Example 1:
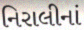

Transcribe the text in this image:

નિરાલીનાં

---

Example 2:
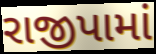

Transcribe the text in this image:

રાજીપામાં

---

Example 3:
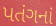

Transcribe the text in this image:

પતંગનાં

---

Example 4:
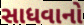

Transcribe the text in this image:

સાધવાનો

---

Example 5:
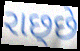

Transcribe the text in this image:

રાછ્છે